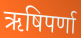
ऋषिपर्णा